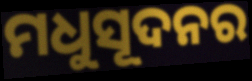
ମଧୁସୂଦନର